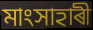
মাংসাহাৰী